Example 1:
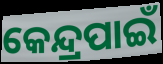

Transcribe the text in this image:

କେନ୍ଦ୍ରପାଇଁ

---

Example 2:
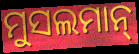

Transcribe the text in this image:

ମୁସଲମାନ୍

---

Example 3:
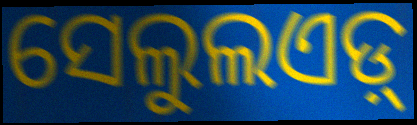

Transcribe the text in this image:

ସେଲୁଲଏଡ଼୍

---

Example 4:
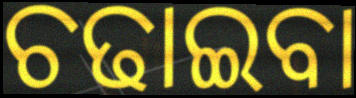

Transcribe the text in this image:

ଚଢାଇବା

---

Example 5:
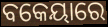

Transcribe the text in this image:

ବକେୟାରେ